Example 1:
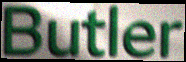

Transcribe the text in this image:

Butler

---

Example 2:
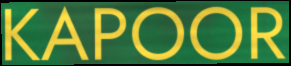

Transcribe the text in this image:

KAPOOR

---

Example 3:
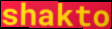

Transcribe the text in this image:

shakto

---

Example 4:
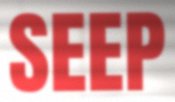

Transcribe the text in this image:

SEEP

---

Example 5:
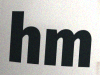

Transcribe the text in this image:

hm